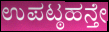
ಉಪಟ್ಠಹನ್ತೇ